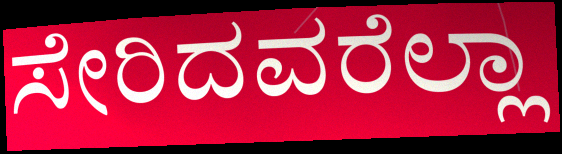
ಸೇರಿದವರೆಲ್ಲಾ